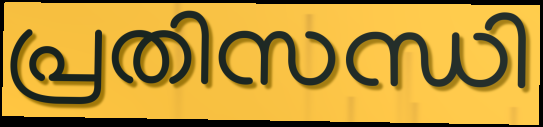
പ്രതിസന്ധി